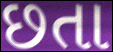
છતા